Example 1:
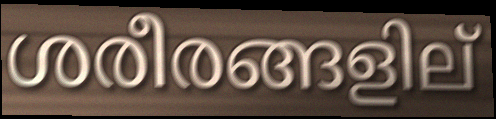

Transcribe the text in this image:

ശരീരങ്ങളില്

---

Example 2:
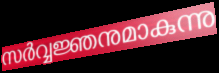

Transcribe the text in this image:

സർവ്വജ്ഞനുമാകുന്നു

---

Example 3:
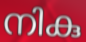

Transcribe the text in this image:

നികു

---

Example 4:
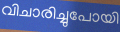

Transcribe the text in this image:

വിചാരിച്ചുപോയി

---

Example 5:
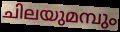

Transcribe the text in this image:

ചിലയുമമ്പും